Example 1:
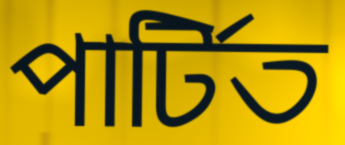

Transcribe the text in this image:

পাৰ্টিত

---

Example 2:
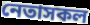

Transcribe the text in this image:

নেতাসকল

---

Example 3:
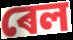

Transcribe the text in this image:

ৰেল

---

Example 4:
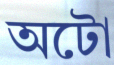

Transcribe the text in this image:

অটো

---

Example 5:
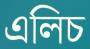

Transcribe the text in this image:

এলিচ